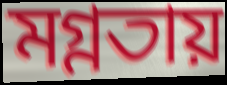
মগ্নতায়